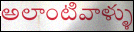
అలాంటివాళ్ళు